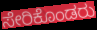
ಸೇರಿಕೊಂಡರು